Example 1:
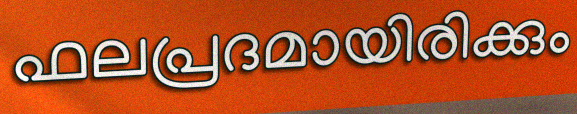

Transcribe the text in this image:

ഫലപ്രദമായിരിക്കും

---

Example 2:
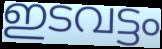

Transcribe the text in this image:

ഇടവട്ടം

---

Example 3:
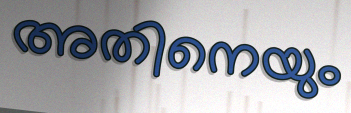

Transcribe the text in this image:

അതിനെയും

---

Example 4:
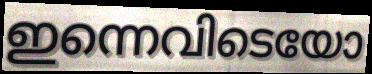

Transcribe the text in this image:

ഇന്നെവിടെയോ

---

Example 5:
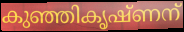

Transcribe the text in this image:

കുഞ്ഞികൃഷ്ണന്